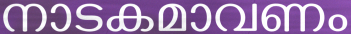
നാടകമാവണം